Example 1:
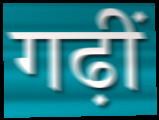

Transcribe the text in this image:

गढ़ीं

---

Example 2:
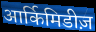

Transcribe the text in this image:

आर्किमिडीज़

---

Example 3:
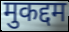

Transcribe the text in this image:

मुकद्दम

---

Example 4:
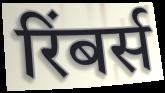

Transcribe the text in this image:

रिंबर्स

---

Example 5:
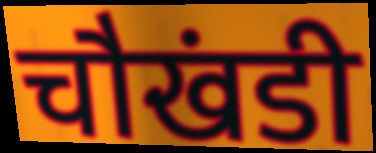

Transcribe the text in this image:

चौखंडी